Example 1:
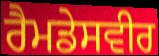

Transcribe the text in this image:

ਰੈਮਡੇਸਵੀਰ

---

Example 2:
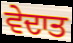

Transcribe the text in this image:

ਵੇਦਾਤ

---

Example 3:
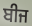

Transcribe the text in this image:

ਬੀਜ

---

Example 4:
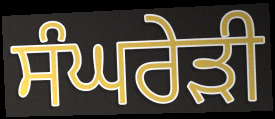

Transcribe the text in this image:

ਸੰਘਰੇੜੀ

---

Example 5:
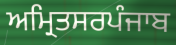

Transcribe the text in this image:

ਅਮ੍ਰਿਤਸਰਪੰਜਾਬ